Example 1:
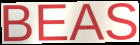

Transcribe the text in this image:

BEAS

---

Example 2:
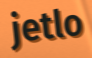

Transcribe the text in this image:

jetlo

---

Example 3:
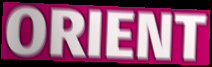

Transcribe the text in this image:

ORIENT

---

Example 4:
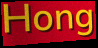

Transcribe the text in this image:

Hong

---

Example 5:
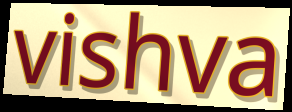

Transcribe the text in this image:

vishva